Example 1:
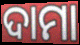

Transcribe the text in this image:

ଦାମା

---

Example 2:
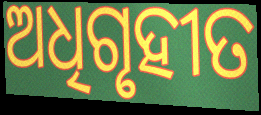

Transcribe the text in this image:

ଅଧିଗୃହୀତ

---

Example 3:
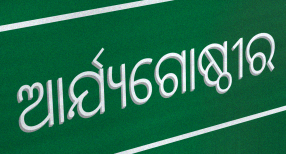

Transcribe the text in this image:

ଆର୍ଯ୍ୟଗୋଷ୍ଠୀର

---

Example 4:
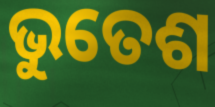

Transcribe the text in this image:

ଭୁତେଶ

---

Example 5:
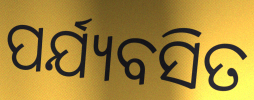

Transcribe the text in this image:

ପର୍ଯ୍ୟବସିତ